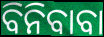
ବିନିବାବା